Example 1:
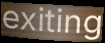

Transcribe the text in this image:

exiting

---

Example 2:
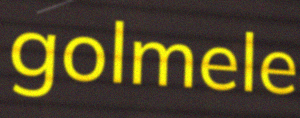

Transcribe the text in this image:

golmele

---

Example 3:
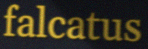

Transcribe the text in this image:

falcatus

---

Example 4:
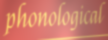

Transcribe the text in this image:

phonological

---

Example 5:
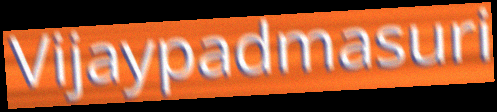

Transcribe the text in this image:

Vijaypadmasuri